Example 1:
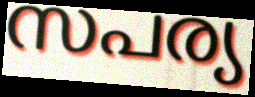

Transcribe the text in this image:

സപര്യ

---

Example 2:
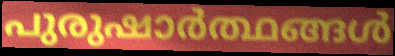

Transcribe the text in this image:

പുരുഷാർത്ഥങ്ങൾ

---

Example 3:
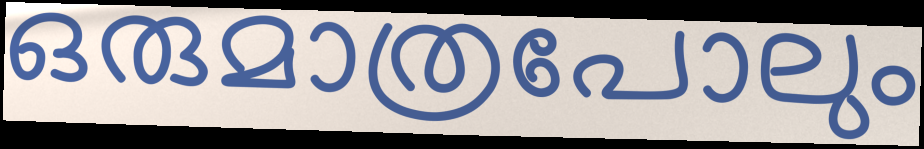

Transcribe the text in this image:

ഒരുമാത്രപോലും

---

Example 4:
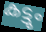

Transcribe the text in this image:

കട്ടും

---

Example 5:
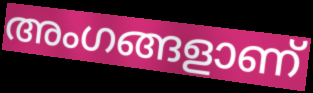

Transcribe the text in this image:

അംഗങ്ങളാണ്